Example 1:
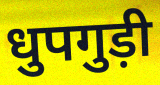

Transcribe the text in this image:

धुपगुड़ी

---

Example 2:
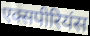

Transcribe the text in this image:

एक्सपीरियंस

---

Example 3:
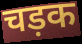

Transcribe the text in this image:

चड़क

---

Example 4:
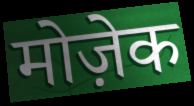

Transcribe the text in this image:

मोज़ेक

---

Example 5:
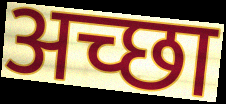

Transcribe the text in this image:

अच्छा